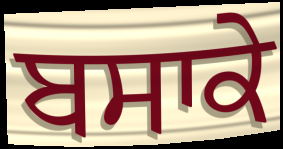
ਬਸਾਕੇ